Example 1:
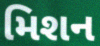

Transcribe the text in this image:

મિશન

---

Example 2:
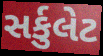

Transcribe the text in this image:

સર્કુલેટ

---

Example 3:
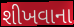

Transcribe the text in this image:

શીખવાના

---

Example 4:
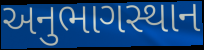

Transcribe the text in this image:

અનુભાગસ્થાન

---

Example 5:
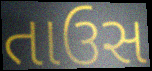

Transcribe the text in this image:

તાઉસ